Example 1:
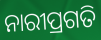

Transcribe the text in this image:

ନାରୀପ୍ରଗତି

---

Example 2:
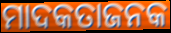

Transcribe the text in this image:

ମାଦକତାଜନକ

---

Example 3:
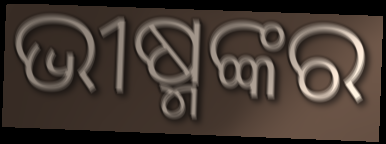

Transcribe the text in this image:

ଭୀଷ୍ମଙ୍କର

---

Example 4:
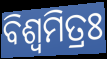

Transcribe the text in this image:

ବିଶ୍ବମିତ୍ରଃ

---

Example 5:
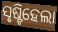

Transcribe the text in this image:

ସୃଷ୍ଟିହେଲା